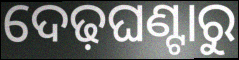
ଦେଢ଼ଘଣ୍ଟାରୁ